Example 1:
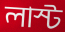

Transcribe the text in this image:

লাস্ট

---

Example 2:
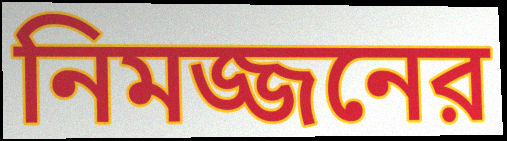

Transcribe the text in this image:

নিমজ্জনের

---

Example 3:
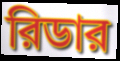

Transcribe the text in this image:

রিডার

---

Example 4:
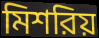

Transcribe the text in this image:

মিশরিয়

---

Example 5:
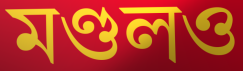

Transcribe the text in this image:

মণ্ডলও